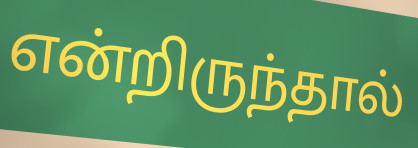
என்றிருந்தால்